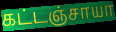
கட்டஞ்சாயா